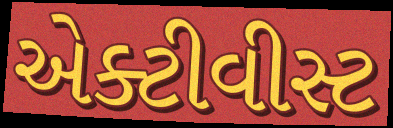
એક્ટીવીસ્ટ